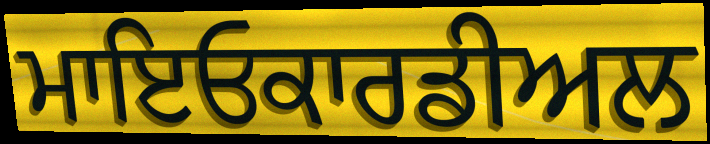
ਮਾਇਓਕਾਰਡੀਅਲ